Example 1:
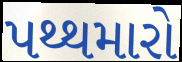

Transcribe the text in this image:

પથ્થમારો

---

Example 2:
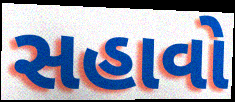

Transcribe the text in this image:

સહાવો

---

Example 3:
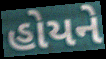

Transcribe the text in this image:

હોયને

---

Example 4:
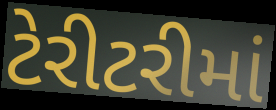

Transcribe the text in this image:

ટેરીટરીમાં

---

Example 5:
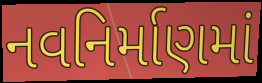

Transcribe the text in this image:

નવનિર્માણમાં